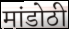
मांडोठी